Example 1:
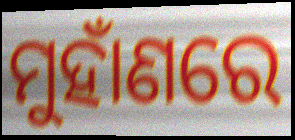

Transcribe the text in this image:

ମୁହାଁଣରେ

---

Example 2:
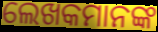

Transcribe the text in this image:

ଲେଖକମାନଙ୍କ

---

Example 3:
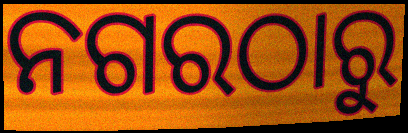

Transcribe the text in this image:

ନଗରଠାରୁ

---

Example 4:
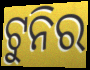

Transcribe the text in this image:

ଟୁନିର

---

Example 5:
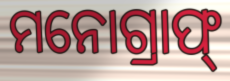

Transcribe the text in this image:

ମନୋଗ୍ରାଫ୍